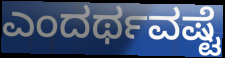
ಎಂದರ್ಥವಷ್ಟೆ